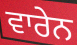
ਵਾਰੇਨ